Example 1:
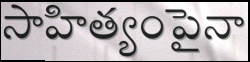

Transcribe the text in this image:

సాహిత్యంపైనా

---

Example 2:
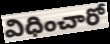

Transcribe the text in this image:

విధించారో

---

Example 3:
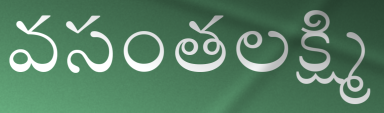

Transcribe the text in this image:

వసంతలక్ష్మి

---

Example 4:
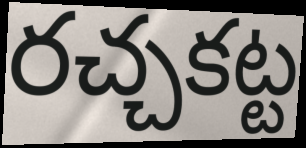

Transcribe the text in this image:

రచ్చకట్ట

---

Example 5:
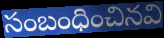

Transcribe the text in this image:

సంబంధించినవి